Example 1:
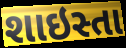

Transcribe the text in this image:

શાઇસ્તા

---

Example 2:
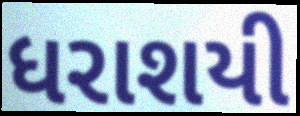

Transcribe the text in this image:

ધરાશયી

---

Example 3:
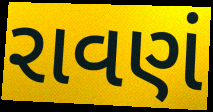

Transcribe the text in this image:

રાવણં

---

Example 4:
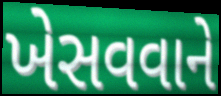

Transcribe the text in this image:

ખેસવવાને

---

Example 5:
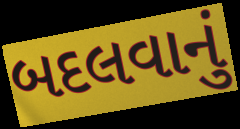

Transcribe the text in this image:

બદલવાનું